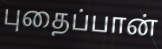
புதைப்பான்